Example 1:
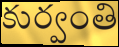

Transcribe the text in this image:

కుర్వంతి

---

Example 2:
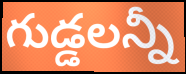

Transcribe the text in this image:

గుడ్డలన్నీ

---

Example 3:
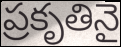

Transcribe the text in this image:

ప్రకృతినై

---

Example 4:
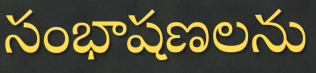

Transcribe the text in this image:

సంభాషణలను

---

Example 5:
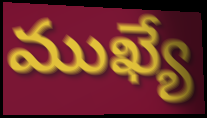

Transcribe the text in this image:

ముఖ్యే